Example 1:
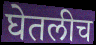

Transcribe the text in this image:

घेतलीच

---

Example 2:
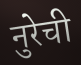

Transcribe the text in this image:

नुरेची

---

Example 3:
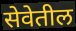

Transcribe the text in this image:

सेवेतील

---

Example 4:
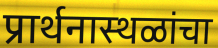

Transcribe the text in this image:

प्रार्थनास्थळांचा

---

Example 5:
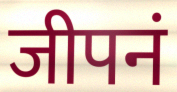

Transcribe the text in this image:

जीपनं